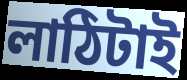
লাঠিটাই